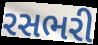
રસભરી